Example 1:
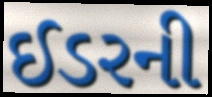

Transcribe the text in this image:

ઈડરની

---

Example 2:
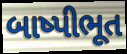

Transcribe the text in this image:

બાષ્પીભૂત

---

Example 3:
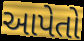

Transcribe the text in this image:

આપેતો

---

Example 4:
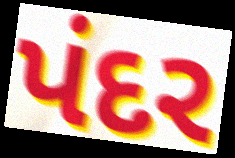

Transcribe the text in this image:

પંદર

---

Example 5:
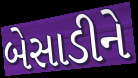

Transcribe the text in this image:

બેસાડીને